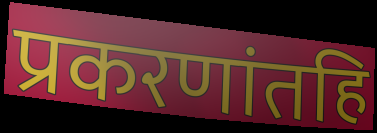
प्रकरणांतहि